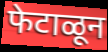
फेटाळून